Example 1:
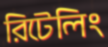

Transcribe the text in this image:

রিটেলিং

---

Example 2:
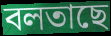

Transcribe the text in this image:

বলতাছে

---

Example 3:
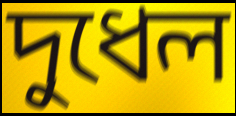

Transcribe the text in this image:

দুধেল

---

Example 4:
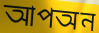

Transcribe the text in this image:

আপঅন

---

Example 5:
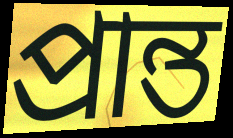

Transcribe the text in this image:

প্রান্ত